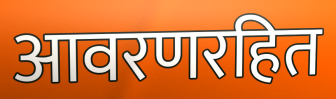
आवरणरहित